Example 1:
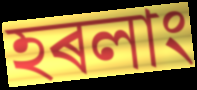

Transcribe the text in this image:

হৰলাং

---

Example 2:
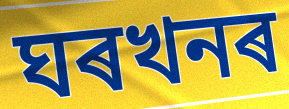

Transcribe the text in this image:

ঘৰখনৰ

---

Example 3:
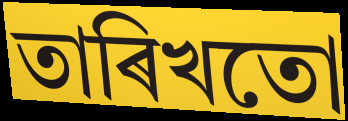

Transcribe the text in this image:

তাৰিখতো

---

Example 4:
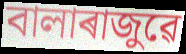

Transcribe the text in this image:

বালাৰাজুৱে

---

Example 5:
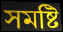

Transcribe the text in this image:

সমষ্টি